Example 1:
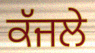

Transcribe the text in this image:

ਕੱਜਲੇ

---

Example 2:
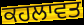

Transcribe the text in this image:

ਕਹਲਾਵਤ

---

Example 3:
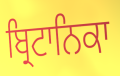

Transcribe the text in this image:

ਬ੍ਰਿਟਾਨਿਕਾ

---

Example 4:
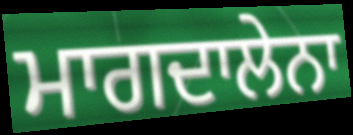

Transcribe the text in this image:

ਮਾਗਦਾਲੇਨਾ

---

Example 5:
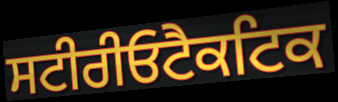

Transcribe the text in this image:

ਸਟੀਰੀਓਟੈਕਟਿਕ